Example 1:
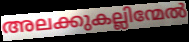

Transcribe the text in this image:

അലക്കുകല്ലിന്മേൽ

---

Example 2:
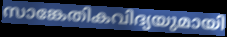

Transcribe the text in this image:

സാങ്കേതികവിദ്യയുമായി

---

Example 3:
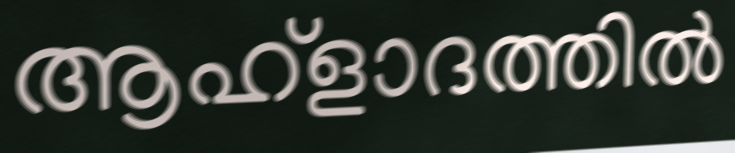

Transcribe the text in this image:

ആഹ്ളാദത്തിൽ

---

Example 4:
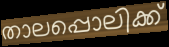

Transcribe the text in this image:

താലപ്പൊലിക്ക്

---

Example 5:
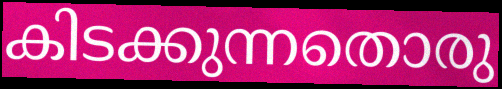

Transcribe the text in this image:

കിടക്കുന്നതൊരു